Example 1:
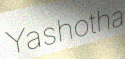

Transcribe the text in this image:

Yashotha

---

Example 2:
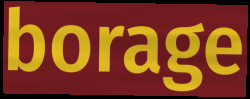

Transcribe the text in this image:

borage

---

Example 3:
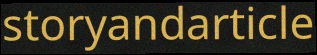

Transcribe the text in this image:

storyandarticle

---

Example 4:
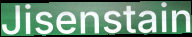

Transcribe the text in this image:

Jisenstain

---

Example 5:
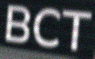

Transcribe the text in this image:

BCT